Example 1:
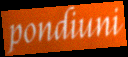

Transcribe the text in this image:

pondiuni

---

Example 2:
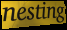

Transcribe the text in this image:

nesting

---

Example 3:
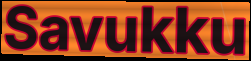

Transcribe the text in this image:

Savukku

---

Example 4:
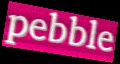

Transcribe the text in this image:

pebble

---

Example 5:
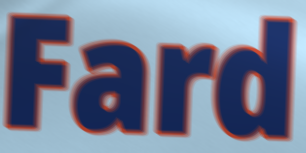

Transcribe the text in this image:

Fard